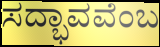
ಸದ್ಭಾವವೆಂಬ